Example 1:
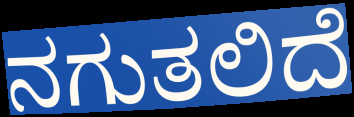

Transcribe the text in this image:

ನಗುತಲಿದೆ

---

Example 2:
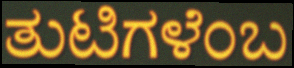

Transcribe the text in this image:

ತುಟಿಗಳೆಂಬ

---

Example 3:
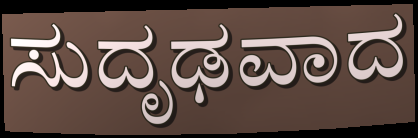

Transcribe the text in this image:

ಸುದೃಢವಾದ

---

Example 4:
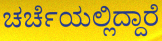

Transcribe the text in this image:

ಚರ್ಚೆಯಲ್ಲಿದ್ದಾರೆ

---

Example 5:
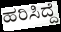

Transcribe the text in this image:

ಹರಿಸಿದ್ದೆ